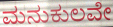
ಮನುಕುಲವೇ